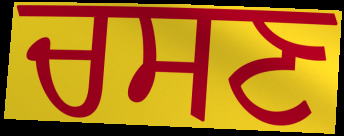
ਚਸਣ